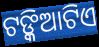
ଟଙ୍କିଆଟିଏ